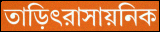
তাড়িৎরাসায়নিক